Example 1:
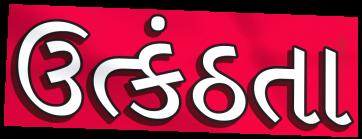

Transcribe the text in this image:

ઉત્કંઠતા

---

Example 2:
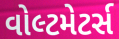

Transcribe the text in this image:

વોલ્ટમેટર્સ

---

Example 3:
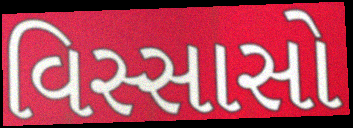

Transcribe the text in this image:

વિસ્સાસો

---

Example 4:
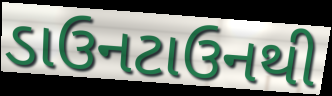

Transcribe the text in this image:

ડાઉનટાઉનથી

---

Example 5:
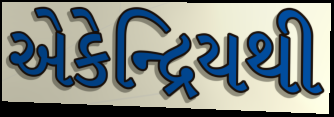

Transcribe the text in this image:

એકેન્દ્રિયથી